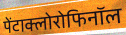
पेंटाक्लोरोफिनॉल